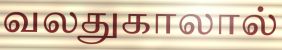
வலதுகாலால்